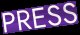
PRESS